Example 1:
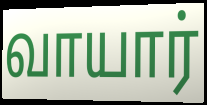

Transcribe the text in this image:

வாயார்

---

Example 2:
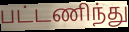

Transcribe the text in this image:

பட்டணிந்து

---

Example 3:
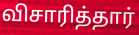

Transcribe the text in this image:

விசாரித்தார்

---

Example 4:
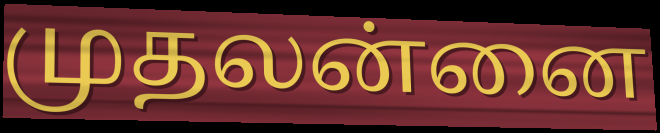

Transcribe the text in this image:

முதலன்னை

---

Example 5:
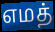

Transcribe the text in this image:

எமத்